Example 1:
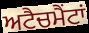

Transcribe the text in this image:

ਅਟੈਚਮੈਂਟਾਂ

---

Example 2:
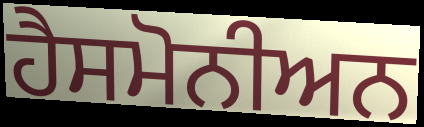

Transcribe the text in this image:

ਹੈਸਮੋਨੀਅਨ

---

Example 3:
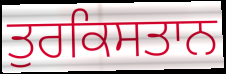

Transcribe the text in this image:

ਤੁਰਕਿਸਤਾਨ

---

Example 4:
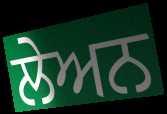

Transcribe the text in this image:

ਲੇਅਨ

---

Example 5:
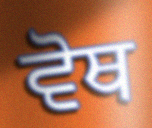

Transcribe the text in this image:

ਵੋਥ